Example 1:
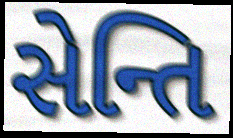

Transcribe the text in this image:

સેન્તિ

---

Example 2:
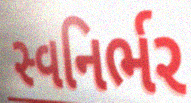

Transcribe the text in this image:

સ્વનિર્ભર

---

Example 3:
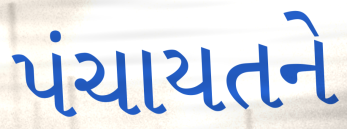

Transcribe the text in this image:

પંચાયતને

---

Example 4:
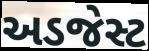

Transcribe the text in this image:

અડજેસ્ટ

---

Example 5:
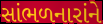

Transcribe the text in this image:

સાંભળનારાંને